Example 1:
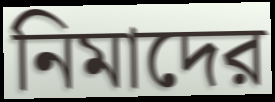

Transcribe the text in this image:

নিমাদের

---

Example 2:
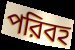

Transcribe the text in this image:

পরিবহ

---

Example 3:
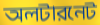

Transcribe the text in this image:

অলটারনেট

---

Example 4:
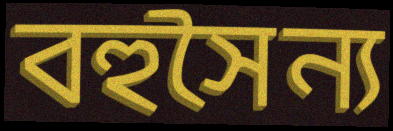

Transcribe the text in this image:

বহুসৈন্য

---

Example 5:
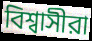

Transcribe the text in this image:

বিশ্বাসীরা